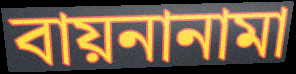
বায়নানামা